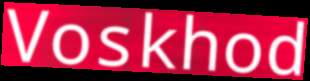
Voskhod